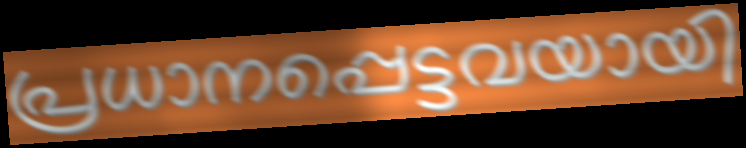
പ്രധാനപ്പെട്ടവയായി